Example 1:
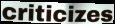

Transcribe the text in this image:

criticizes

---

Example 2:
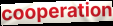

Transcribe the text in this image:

cooperation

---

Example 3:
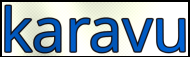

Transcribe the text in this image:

karavu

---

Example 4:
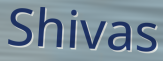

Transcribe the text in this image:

Shivas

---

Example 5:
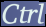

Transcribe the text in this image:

Ctrl